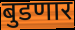
बुडणार